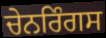
ਚੇਨਰਿੰਗਸ